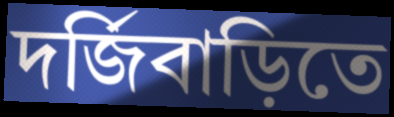
দর্জিবাড়িতে